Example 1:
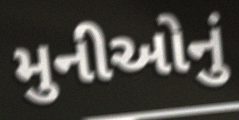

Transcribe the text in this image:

મુનીઓનું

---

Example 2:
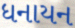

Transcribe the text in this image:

ધનાયન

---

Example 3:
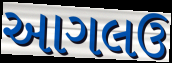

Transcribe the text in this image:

આગલઉ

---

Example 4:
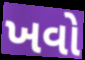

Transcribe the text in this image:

ખવો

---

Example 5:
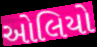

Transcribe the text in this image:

ઓલિયો